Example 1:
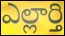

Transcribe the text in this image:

ఎల్లార్తి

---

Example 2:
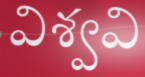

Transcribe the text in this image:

విశ్వవి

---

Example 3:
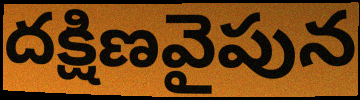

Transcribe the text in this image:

దక్షిణవైపున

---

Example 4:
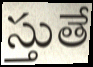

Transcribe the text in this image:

స్తుతే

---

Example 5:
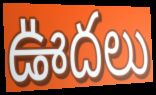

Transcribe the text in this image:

ఊదలు